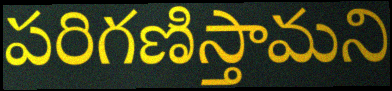
పరిగణిస్తామని